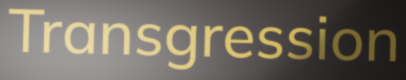
Transgression